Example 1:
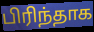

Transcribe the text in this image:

பிரிந்தாக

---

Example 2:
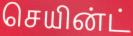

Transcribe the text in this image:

செயின்ட்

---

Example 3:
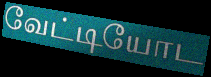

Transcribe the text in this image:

வேட்டியோட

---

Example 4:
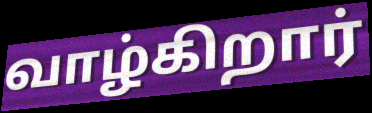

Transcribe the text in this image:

வாழ்கிறார்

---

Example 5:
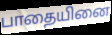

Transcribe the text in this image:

பாதையினை